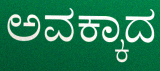
ಅವಕ್ಕಾದ